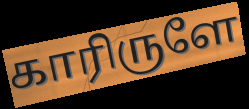
காரிருளே